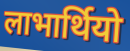
लाभार्थियो